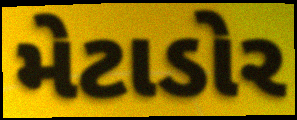
મેટાડોર